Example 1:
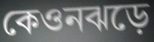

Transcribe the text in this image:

কেওনঝড়ে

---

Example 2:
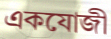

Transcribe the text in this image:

একযোজী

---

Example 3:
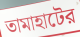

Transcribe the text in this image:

তামাহাটের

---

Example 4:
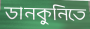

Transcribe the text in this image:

ডানকুনিতে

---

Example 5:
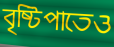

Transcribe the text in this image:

বৃষ্টিপাতেও